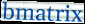
bmatrix